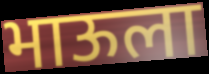
भाऊला